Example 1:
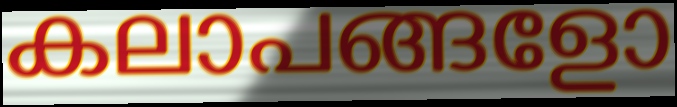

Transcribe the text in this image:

കലാപങ്ങളോ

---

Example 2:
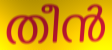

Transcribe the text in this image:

തീൻ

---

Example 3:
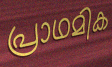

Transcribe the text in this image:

പ്രാഥമിക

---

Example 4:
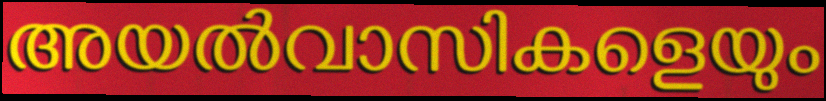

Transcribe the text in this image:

അയൽവാസികളെയും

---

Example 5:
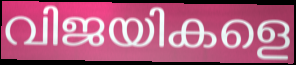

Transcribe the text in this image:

വിജയികളെ